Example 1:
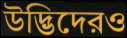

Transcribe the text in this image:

উদ্ভিদেরও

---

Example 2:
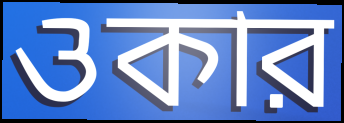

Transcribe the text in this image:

ওকার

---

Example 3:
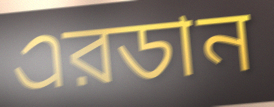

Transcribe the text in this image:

এরডান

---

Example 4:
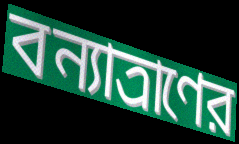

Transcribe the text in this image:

বন্যাত্রাণের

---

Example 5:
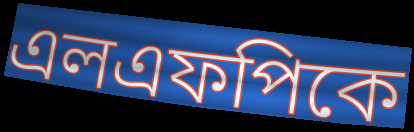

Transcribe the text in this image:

এলএফপিকে